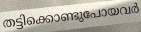
തട്ടിക്കൊണ്ടുപോയവർ